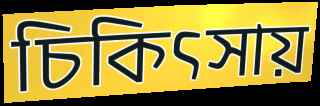
চিকিৎসায়